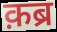
क़ब्र